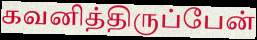
கவனித்திருப்பேன்